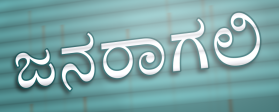
ಜನರಾಗಲಿ